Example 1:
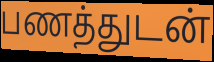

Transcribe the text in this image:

பணத்துடன்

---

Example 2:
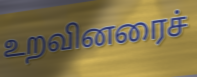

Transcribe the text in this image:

உறவினரைச்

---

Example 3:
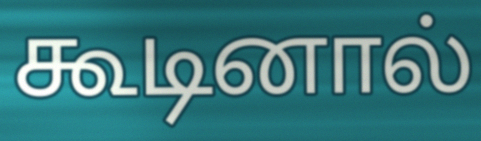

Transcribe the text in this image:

கூடினால்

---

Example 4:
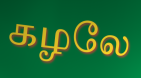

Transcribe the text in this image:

கழலே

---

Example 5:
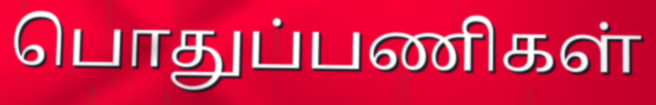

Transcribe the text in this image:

பொதுப்பணிகள்